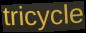
tricycle